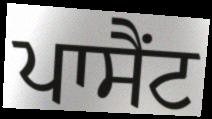
ਪਾਸੈਂਟ